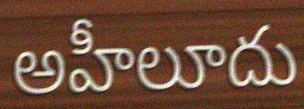
అహీలూదు